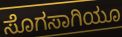
ಸೊಗಸಾಗಿಯೂ